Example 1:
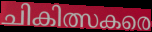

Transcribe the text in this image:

ചികിത്സകരെ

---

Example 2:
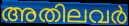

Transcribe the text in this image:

അതിലവർ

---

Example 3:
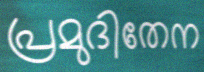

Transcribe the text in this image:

പ്രമുദിതേന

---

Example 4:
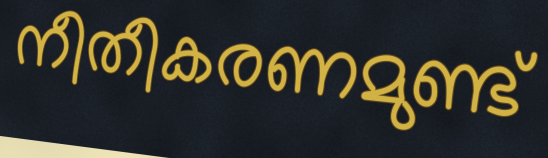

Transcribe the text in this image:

നീതീകരണമുണ്ട്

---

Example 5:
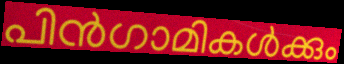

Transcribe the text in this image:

പിൻഗാമികൾക്കും